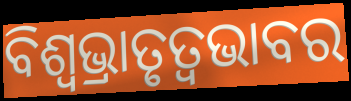
ବିଶ୍ଵଭ୍ରାତୃତ୍ୱଭାବର